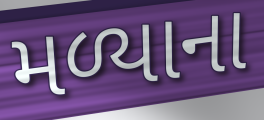
મળ્યાના